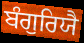
ਬੰਗੁਰਿਯੈ